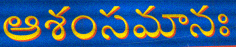
ఆశంసమానః